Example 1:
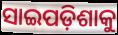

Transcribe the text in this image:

ସାଇପଡ଼ିଶାକୁ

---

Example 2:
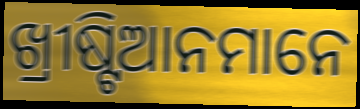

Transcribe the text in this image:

ଖ୍ରୀଷ୍ଟିଆନମାନେ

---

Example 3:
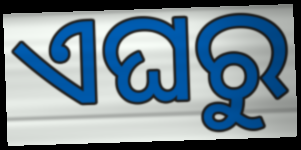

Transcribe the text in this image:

ଏଘରୁ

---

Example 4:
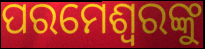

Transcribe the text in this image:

ପରମେଶ୍ୱରଙ୍କୁ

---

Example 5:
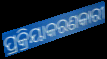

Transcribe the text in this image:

ପ୍ରକ୍ରିୟାକରଣକାରୀ